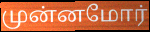
முன்னமோர்